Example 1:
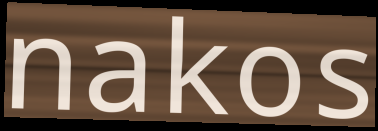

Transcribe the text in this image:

nakos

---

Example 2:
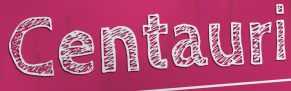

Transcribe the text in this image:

Centauri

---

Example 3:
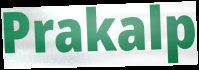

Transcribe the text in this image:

Prakalp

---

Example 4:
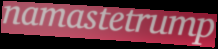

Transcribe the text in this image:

namastetrump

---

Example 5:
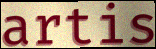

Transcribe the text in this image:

artis